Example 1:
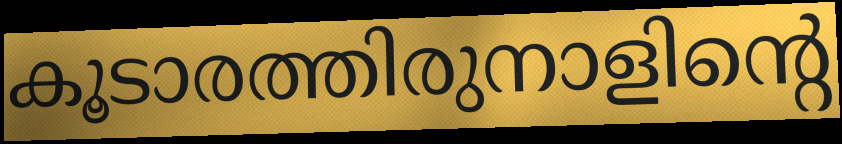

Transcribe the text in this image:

കൂടാരത്തിരുനാളിന്റെ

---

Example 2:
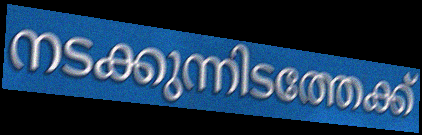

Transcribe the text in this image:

നടക്കുന്നിടത്തേക്ക്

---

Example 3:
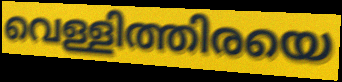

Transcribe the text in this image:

വെള്ളിത്തിരയെ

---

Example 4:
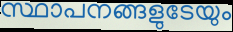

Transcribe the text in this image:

സ്ഥാപനങ്ങളുടേയും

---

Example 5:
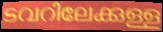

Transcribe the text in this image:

ടവറിലേക്കുള്ള